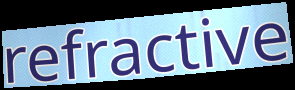
refractive